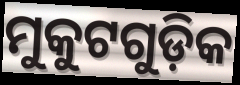
ମୁକୁଟଗୁଡ଼ିକ